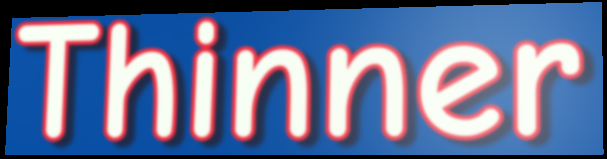
Thinner